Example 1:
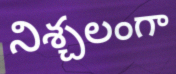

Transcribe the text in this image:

నిశ్చలంగా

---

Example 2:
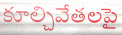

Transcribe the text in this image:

కూల్చివేతలపై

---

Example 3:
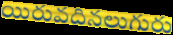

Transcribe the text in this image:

యిరువదినలుగురు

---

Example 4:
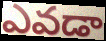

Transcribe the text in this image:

ఎవడా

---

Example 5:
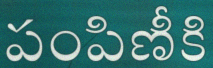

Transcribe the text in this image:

పంపిణీకి